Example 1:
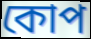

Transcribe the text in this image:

কোপ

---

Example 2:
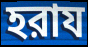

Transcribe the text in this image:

হরায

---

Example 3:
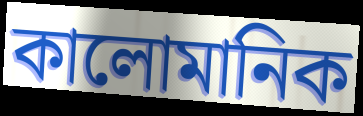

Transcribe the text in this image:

কালোমানিক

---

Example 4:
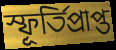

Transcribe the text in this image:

স্ফূর্তিপ্রাপ্ত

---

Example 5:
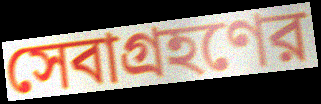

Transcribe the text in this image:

সেবাগ্রহণের